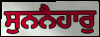
ਸੁਨਨੈਹਾਰੁ